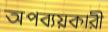
অপব্যয়কারী